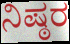
ನಿಷ್ಠರ